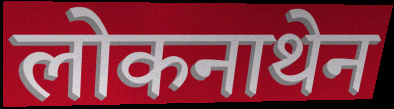
लोकनाथेन